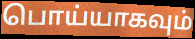
பொய்யாகவும்